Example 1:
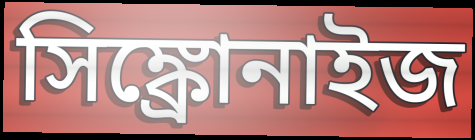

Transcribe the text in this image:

সিঙ্ক্রোনাইজ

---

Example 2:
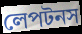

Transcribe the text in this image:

লেপটনস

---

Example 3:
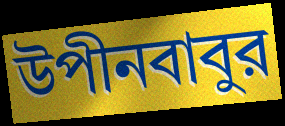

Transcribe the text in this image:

উপীনবাবুর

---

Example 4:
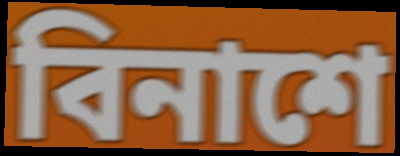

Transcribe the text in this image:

বিনাশে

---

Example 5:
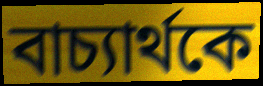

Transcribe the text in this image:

বাচ্যার্থকে